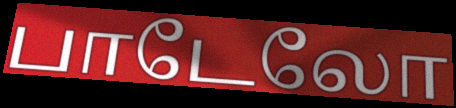
பாடேலோ